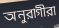
অনুরাগীরা